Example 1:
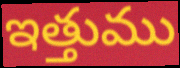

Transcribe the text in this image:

ఇత్తుము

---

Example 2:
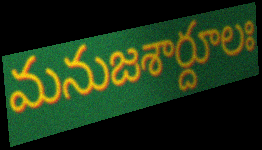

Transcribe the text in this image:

మనుజశార్దూలః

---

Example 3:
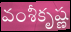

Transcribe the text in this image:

వంశీకృష్ణ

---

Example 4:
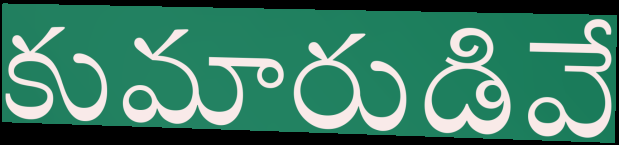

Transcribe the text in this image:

కుమారుడివే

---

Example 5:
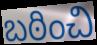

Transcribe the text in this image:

బఠించి